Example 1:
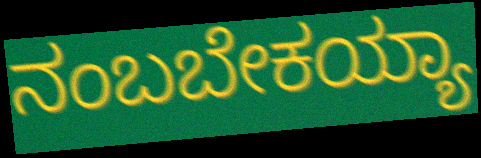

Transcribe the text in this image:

ನಂಬಬೇಕಯ್ಯಾ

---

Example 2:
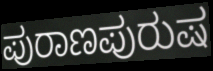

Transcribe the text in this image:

ಪುರಾಣಪುರುಷ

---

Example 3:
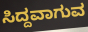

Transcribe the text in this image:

ಸಿದ್ದವಾಗುವ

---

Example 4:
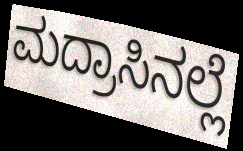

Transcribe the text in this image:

ಮದ್ರಾಸಿನಲ್ಲೆ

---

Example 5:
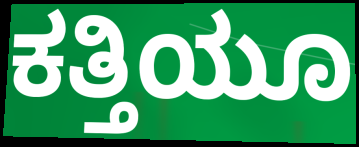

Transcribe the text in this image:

ಕತ್ತಿಯೂ